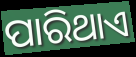
ପାରିଥାଏ